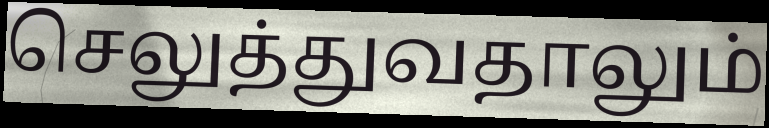
செலுத்துவதாலும்